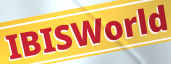
IBISWorld